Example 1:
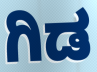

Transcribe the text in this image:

ಗಿಡ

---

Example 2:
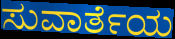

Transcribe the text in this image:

ಸುವಾರ್ತೆಯ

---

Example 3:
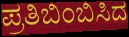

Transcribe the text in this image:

ಪ್ರತಿಬಿಂಬಿಸಿದ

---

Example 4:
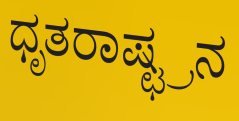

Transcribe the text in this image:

ಧೃತರಾಷ್ಟ್ರನ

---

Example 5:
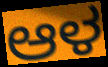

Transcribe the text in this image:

ಆಳ